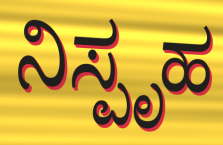
ನಿಸ್ಪೃಹ